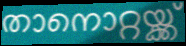
താനൊറ്റയ്ക്ക്